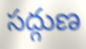
సద్గుణ